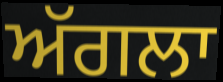
ਅੱਗਲਾ